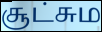
சூட்சும